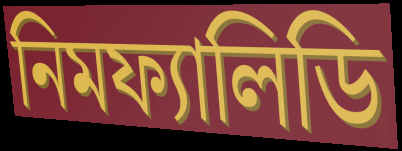
নিমফ্যালিডি